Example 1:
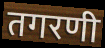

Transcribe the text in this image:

तगरणी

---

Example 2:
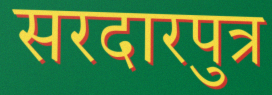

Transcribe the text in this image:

सरदारपुत्र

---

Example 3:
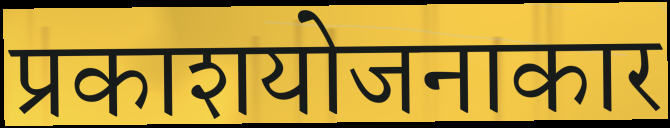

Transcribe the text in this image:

प्रकाशयोजनाकार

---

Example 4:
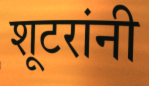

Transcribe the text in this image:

शूटरांनी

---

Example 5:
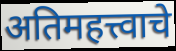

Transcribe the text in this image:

अतिमहत्त्वाचे